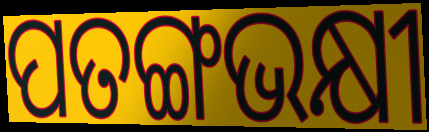
ପତଙ୍ଗଭକ୍ଷୀ